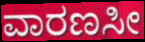
ವಾರಣಸೀ